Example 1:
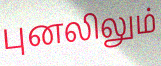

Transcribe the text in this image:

புனலிலும்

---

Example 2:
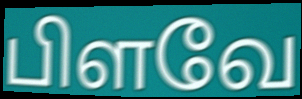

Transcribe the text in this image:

பிளவே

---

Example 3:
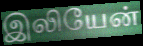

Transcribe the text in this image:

இலியேன்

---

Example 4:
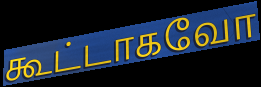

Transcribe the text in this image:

கூட்டாகவோ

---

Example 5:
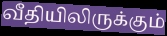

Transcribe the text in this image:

வீதியிலிருக்கும்